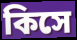
কিসে